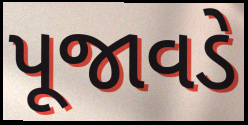
પૂજાવડે